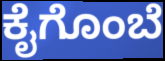
ಕೈಗೊಂಬೆ